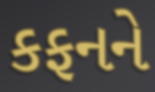
કફનને